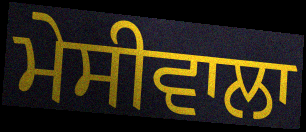
ਮੇਸੀਵਾਲਾ